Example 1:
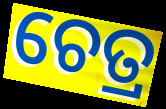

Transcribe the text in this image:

ଚେତ୍ର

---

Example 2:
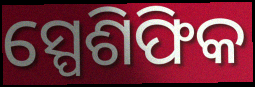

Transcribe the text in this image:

ସ୍ପେଶିଫିକ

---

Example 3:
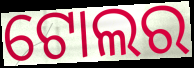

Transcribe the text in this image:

ଟୋଲର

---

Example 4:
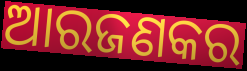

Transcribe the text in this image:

ଆରଜଣକର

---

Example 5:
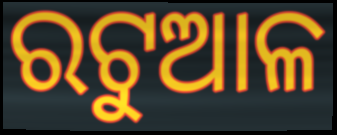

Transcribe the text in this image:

ରଟୁଆଳ